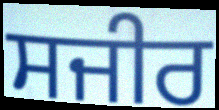
ਸਜੀਰ